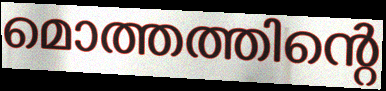
മൊത്തത്തിന്റെ